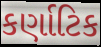
કર્ણાટિક